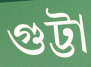
গুট্টা